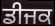
ਡੀਜਕ